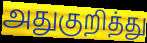
அதுகுறித்து